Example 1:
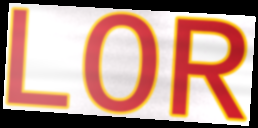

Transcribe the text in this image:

LOR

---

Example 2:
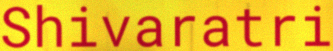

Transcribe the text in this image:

Shivaratri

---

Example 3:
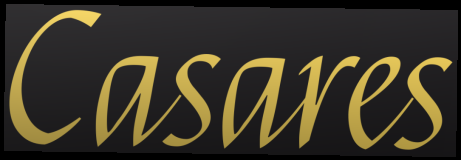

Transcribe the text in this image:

Casares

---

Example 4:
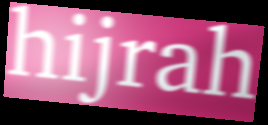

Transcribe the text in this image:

hijrah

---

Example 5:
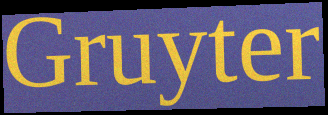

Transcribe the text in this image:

Gruyter